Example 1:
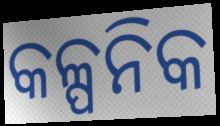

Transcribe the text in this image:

କଳ୍ପନିକ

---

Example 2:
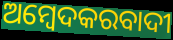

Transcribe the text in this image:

ଅମ୍ବେଦକରବାଦୀ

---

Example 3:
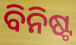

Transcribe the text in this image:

ବିନିଷ୍ଟ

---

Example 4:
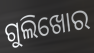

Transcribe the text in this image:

ଗୁଲିଖୋର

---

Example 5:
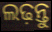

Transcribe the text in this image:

ଲଢ଼ନ୍ତୁ